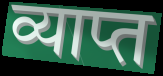
व्‍याप्‍त